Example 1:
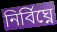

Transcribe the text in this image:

নিৰ্বিঘ্নে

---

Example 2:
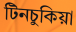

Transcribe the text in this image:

টিনচুকিয়া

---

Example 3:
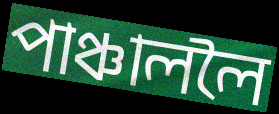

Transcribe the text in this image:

পাঞ্চাললৈ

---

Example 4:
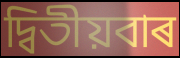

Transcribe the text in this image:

দ্বিতীয়বাৰ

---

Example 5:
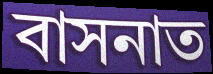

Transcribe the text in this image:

বাসনাত